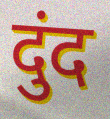
दुंद